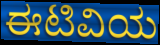
ಈಟಿವಿಯ